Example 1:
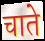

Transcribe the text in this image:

चाते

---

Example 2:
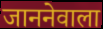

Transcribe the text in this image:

जाननेवाला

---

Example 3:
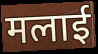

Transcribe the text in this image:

मलाई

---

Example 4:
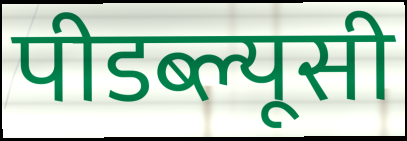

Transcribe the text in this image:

पीडब्ल्यूसी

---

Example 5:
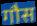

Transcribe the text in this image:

गौस